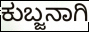
ಕುಬ್ಜನಾಗಿ